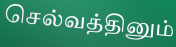
செல்வத்தினும்